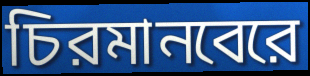
চিরমানবেরে